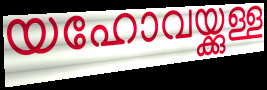
യഹോവയ്ക്കുള്ള